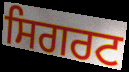
ਸਿਗਰਟ